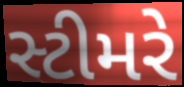
સ્ટીમરે